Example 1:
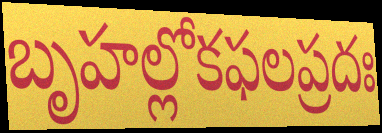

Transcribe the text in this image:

బృహల్లోకఫలప్రదః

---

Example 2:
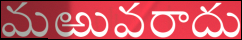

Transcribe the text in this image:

మఱువరాదు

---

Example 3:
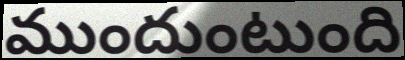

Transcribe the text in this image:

ముందుంటుంది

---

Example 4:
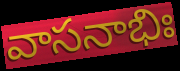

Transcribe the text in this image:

వాసనాభిః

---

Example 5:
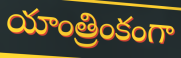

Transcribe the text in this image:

యాంత్రింకంగా